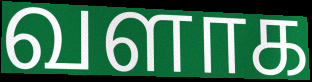
வளாக